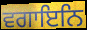
ਵਗਾਇਨਿ